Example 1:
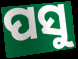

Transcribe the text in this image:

ପସୁ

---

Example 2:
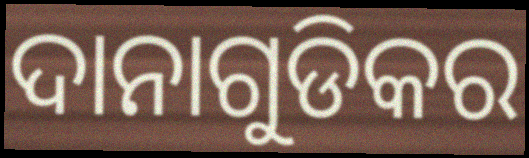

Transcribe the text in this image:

ଦାନାଗୁଡିକର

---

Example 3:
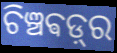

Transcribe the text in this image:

ଚିଞ୍ଚଵଡ଼୍‌ର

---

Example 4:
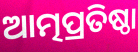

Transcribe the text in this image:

ଆତ୍ମପ୍ରତିଷ୍ଠା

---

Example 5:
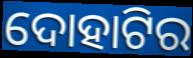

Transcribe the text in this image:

ଦୋହାଟିର